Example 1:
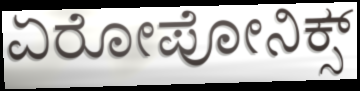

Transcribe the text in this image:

ಏರೋಪೋನಿಕ್ಸ್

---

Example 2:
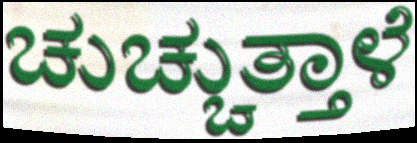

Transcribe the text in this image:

ಚುಚ್ಚುತ್ತಾಳೆ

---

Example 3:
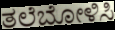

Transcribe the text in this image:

ತಲೆಬೋಳಿಸಿ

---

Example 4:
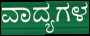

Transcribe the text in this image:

ವಾದ್ಯಗಳ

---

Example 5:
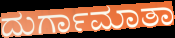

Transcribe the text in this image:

ದುರ್ಗಾಮಾತಾ